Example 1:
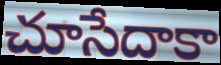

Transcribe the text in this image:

చూసేదాకా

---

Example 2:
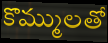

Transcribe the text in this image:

కొమ్ములతో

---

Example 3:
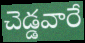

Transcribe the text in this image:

చెడ్డవారే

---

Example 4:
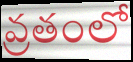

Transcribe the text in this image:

వ్రతంలో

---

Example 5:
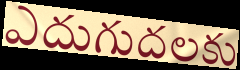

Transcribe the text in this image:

ఎదుగుదలకు